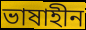
ভাষাহীন